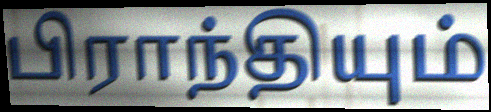
பிராந்தியும்